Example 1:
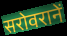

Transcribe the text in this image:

सरोवरानें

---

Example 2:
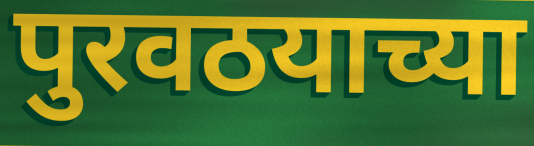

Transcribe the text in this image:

पुरवठयाच्या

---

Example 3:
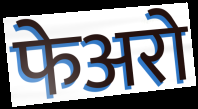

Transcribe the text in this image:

फेअरो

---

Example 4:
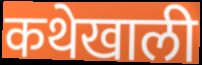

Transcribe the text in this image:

कथेखाली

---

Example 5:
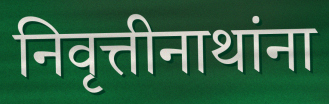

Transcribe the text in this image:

निवृत्तीनाथांना